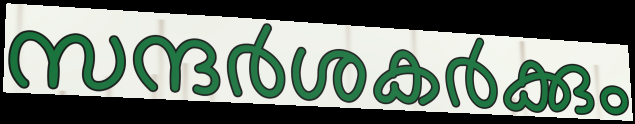
സന്ദർശകർക്കും